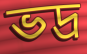
ভদ্ৰ